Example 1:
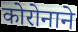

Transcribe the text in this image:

कोरोनाने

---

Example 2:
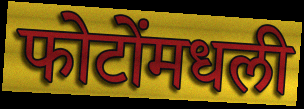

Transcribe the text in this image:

फोटोंमधली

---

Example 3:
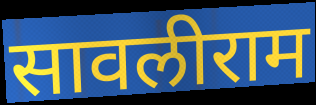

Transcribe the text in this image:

सावलीराम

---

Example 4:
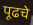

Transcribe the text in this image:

पूढचे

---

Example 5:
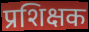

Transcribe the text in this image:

प्रशिक्षक